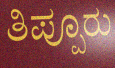
ತಿಪ್ಪೂರು